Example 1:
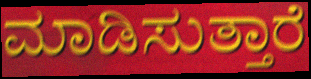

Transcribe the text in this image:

ಮಾಡಿಸುತ್ತಾರೆ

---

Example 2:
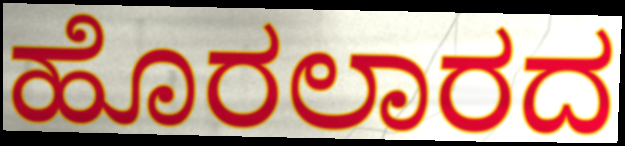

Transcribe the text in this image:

ಹೊರಲಾರದ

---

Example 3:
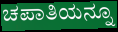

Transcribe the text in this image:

ಚಪಾತಿಯನ್ನೂ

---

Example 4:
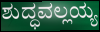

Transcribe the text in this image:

ಶುದ್ಧವಲ್ಲಯ್ಯ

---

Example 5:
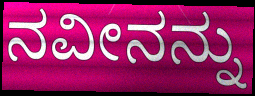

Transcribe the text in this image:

ನವೀನನ್ನು